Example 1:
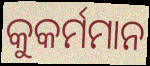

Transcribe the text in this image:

କୁକର୍ମମାନ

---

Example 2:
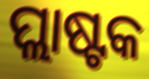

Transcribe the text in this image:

ପ୍ଲାଷ୍ଟକ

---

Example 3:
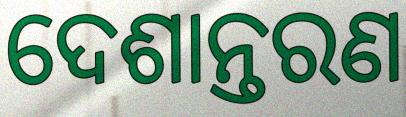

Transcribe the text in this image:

ଦେଶାନ୍ତରଣ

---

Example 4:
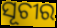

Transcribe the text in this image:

ସୂଚୀର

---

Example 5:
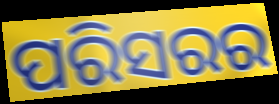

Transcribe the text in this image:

ପରିସରର